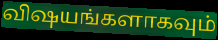
விஷயங்களாகவும்